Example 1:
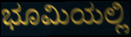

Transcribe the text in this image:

ಭೂಮಿಯಲ್ಲಿ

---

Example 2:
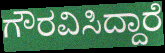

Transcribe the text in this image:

ಗೌರವಿಸಿದ್ದಾರೆ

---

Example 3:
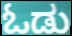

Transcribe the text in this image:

ಓಡು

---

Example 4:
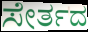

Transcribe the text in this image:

ಸೇರ್ತದ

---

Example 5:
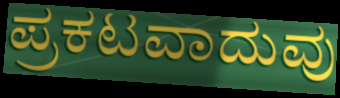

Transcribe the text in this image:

ಪ್ರಕಟವಾದುವು